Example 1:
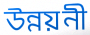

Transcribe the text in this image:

উন্নয়নী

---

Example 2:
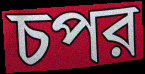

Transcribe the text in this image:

চপর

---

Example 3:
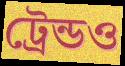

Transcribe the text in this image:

ট্রেন্ডও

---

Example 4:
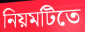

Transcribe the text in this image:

নিয়মটিতে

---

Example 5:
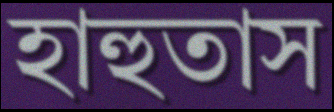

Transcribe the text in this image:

হাহুতাস